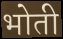
भोती